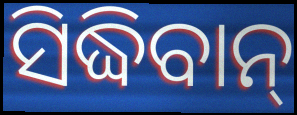
ସିଦ୍ଧିବାନ୍